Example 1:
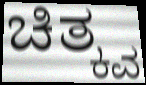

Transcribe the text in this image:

ಚಿತ್ಕ್ವ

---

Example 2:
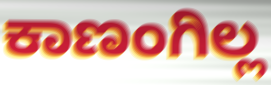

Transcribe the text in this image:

ಕಾಣಂಗಿಲ್ಲ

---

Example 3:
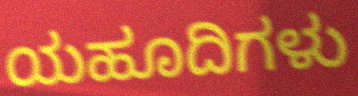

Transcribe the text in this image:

ಯಹೂದಿಗಳು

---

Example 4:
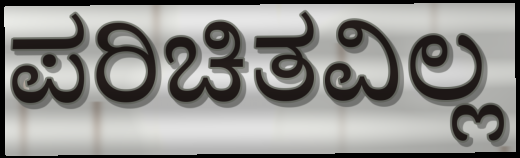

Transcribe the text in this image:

ಪರಿಚಿತವಿಲ್ಲ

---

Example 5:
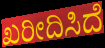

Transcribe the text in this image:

ಖರೀದಿಸಿದೆ